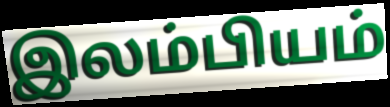
இலம்பியம்